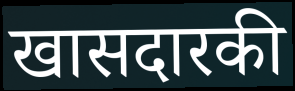
खासदारकी